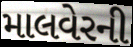
માલવેરની